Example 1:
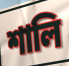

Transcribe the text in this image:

শালি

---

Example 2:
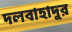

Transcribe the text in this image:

দলবাহাদুর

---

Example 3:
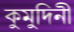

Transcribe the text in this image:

কুমুদিনী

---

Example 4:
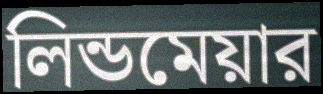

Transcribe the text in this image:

লিন্ডমেয়ার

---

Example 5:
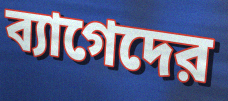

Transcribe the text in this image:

ব্যাগেদের